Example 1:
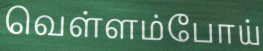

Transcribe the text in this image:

வெள்ளம்போய்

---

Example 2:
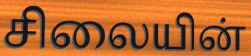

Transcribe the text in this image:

சிலையின்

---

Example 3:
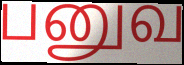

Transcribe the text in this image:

பனுவ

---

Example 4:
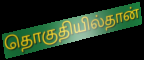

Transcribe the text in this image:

தொகுதியில்தான்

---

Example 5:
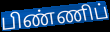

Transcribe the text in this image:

பிண்ணிப்